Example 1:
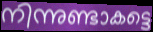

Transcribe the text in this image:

നിന്നുണ്ടാകട്ടെ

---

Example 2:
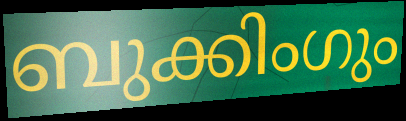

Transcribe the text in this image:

ബുക്കിംഗും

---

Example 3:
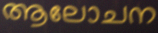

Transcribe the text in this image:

ആലോചന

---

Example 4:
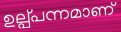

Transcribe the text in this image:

ഉല്പ്പന്നമാണ്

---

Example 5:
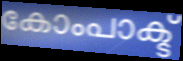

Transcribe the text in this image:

കോംപാക്ട്